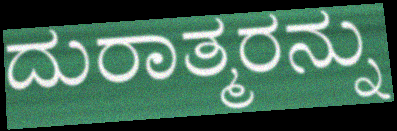
ದುರಾತ್ಮರನ್ನು